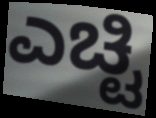
ಎಚ್ಟಿ